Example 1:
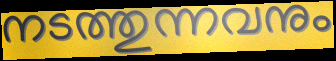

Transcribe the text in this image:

നടത്തുന്നവനും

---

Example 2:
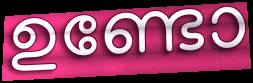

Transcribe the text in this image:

ഉണ്ടോ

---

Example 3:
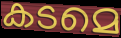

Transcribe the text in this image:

കടമെ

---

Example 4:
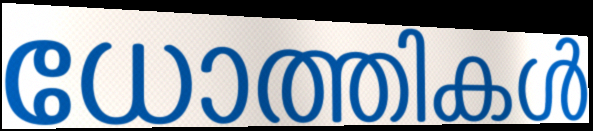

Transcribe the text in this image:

ധോത്തികൾ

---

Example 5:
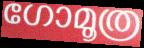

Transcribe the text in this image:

ഗോമൂത്ര